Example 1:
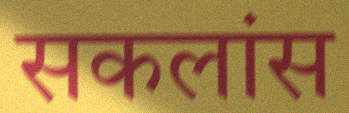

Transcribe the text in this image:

सकलांस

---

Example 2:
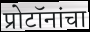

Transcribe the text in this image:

प्रोटॉनांचा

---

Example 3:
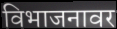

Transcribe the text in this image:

विभाजनावर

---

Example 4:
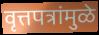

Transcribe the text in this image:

वृत्तपत्रांमुळे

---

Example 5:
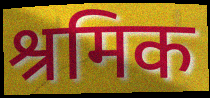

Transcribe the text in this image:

श्रमिक